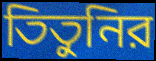
তিতুনির